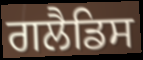
ਗਲੈਡਿਸ